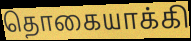
தொகையாக்கி